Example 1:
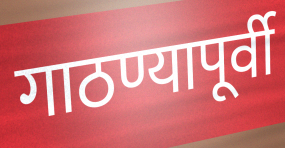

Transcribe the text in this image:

गाठण्यापूर्वी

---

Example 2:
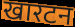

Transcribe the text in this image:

खारटन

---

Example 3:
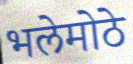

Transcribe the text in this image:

भलेमोठे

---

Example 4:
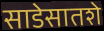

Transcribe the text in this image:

साडेसातशे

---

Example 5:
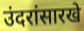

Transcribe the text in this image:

उंदरांसारखे